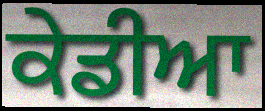
ਕੇਡੀਆ